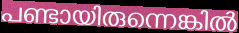
പണ്ടായിരുന്നെങ്കിൽ